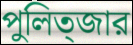
পুলিত্জার